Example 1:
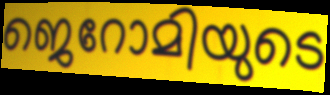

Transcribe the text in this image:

ജെറോമിയുടെ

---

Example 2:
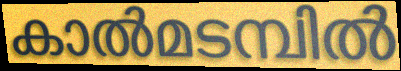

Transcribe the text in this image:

കാൽമടമ്പിൽ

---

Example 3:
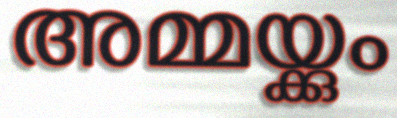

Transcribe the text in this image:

അമ്മയ്ക്കും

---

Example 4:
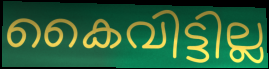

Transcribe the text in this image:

കൈവിട്ടില്ല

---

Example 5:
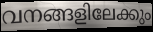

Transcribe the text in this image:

വനങ്ങളിലേക്കും